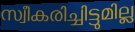
സ്വീകരിച്ചിട്ടുമില്ല